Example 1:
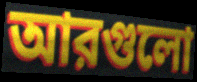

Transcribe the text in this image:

আরগুলো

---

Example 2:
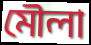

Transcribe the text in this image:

মৌলা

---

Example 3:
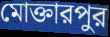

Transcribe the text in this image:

মোক্তারপুর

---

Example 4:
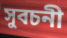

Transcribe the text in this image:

সুবচনী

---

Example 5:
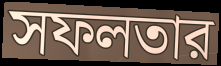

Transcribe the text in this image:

সফলতার